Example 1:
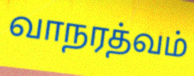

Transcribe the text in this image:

வாநரத்வம்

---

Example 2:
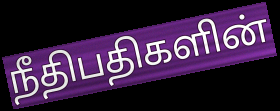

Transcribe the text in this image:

நீதிபதிகளின்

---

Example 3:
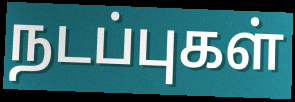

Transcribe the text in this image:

நடப்புகள்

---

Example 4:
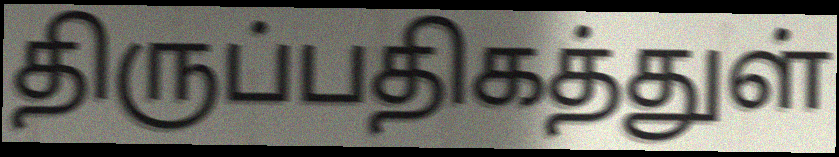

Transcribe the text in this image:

திருப்பதிகத்துள்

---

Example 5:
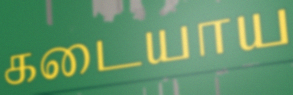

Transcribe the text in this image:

கடையாய